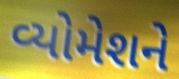
વ્યોમેશને